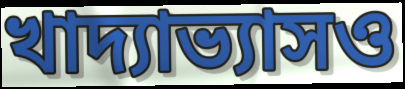
খাদ্যাভ্যাসও